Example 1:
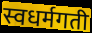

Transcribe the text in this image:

स्वधर्मगती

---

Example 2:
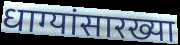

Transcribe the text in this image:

धाग्यांसारख्या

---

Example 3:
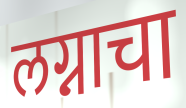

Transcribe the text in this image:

लग्नाचा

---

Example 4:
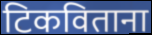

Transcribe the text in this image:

टिकविताना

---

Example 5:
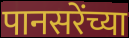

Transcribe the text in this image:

पानसरेंच्या